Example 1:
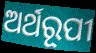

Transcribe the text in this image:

ଅର୍ଥରୂପୀ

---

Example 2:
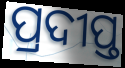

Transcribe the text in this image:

ପ୍ରଦୀପ୍ତ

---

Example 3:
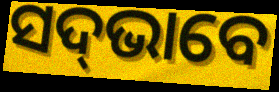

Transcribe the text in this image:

ସଦ୍‌ଭାବେ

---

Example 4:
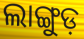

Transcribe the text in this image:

ଲାଙ୍ଗୁଡ଼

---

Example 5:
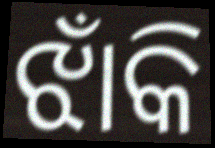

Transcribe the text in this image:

ଝାଁକି